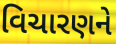
વિચારણને